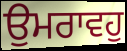
ਉਮਰਾਵਹੁ